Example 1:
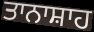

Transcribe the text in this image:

ਤਾਨਾਸ਼ਾਹ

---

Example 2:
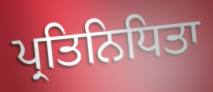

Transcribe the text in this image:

ਪ੍ਰਤਿਨਿਧਿਤਾ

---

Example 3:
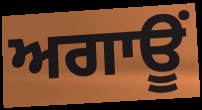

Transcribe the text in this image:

ਅਗਾਊਂ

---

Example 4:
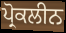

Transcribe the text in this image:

ਪ੍ਰੋਕਲੀਨ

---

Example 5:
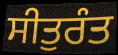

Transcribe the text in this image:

ਸੀਤੁਰੰਤ